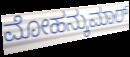
ಮೋಹನ್ಕುಮಾರ್